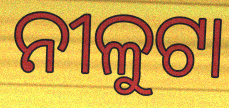
ନୀଳୁଟା